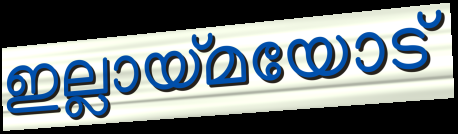
ഇല്ലായ്മയോട്